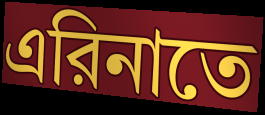
এরিনাতে